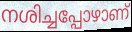
നശിച്ചപ്പോഴാണ്